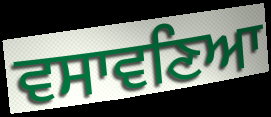
ਵਸਾਵਣਿਆ